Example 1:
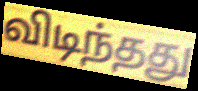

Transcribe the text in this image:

விடிந்தது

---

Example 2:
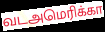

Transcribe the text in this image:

வடஅமெரிக்கா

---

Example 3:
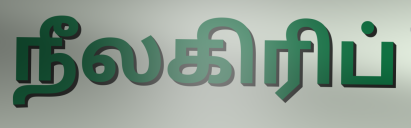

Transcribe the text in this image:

நீலகிரிப்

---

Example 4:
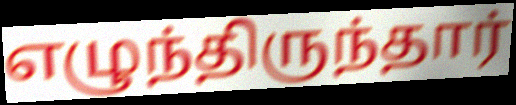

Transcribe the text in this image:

எழுந்திருந்தார்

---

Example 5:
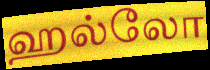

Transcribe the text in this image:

ஹல்லோ